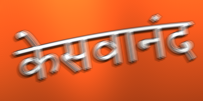
केसवानंद